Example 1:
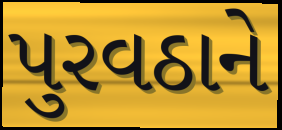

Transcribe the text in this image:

પુરવઠાને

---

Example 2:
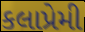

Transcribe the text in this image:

કલાપ્રેમી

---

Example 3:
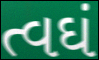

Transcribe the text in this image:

ત્વઘં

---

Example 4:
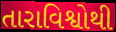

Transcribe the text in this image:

તારાવિશ્વોથી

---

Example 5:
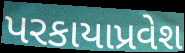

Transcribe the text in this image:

પરકાયાપ્રવેશ